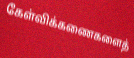
கேள்விக்கணைகளைத்